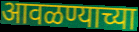
आवळण्याच्या